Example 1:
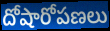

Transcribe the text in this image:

దోషారోపణలు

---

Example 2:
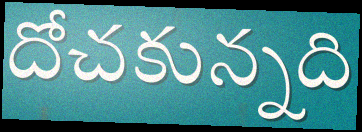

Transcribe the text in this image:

దోచకున్నది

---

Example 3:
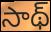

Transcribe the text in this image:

సాథ్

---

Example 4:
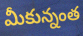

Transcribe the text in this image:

మీకున్నంత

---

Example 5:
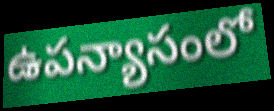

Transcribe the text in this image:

ఉపన్యాసంలో